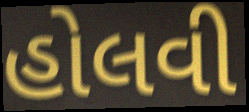
હોલવી